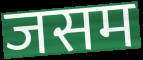
जसम